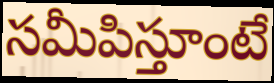
సమీపిస్తూంటే